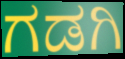
ಗಡಗಿ